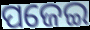
ପଜେଇ